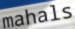
mahals